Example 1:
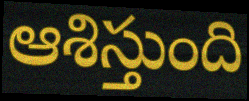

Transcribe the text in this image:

ఆశిస్తుంది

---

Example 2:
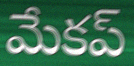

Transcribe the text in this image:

మేకప్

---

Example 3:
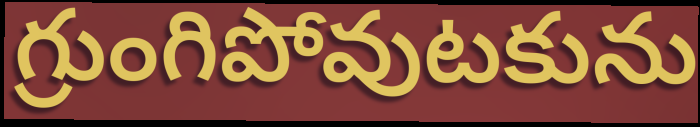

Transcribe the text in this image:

గ్రుంగిపోవుటకును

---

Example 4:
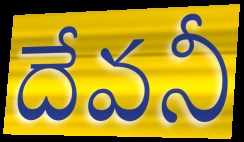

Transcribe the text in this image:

దేవనీ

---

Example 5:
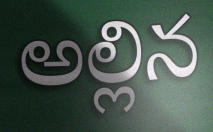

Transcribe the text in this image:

అల్లిన